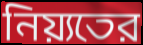
নিয়্যতের